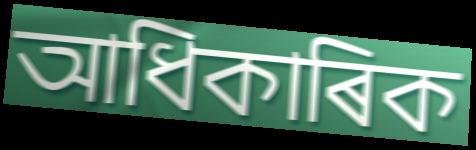
আধিকাৰিক